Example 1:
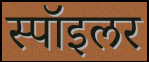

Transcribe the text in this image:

स्पॉइलर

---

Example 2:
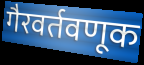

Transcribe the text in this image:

गैरवर्तवणूक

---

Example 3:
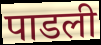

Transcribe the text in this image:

पाडली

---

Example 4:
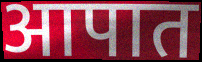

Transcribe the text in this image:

आपात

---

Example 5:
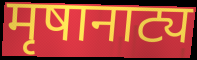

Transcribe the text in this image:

मृषानाट्य